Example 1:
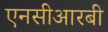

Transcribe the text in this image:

एनसीआरबी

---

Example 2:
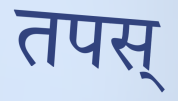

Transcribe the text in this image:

तपस्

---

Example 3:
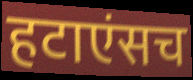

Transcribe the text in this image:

हटाएंसच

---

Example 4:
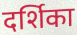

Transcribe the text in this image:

दर्शिका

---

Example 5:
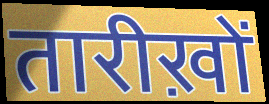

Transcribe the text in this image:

तारीख़ों